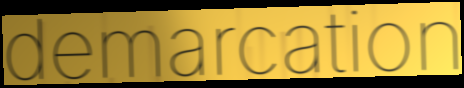
demarcation